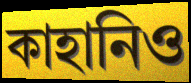
কাহানিও